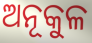
ଅନୂକୁଳ